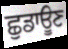
ਛੁਡਾਊਣ